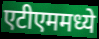
एटीएममध्ये